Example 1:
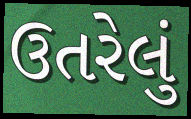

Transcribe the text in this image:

ઉતરેલું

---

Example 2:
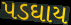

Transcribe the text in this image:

પડઘાય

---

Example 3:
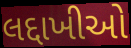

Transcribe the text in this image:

લદ્દાખીઓ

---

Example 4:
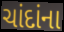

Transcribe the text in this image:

ચાંદાંના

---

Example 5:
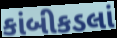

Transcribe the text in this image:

કાંબીકડલાં